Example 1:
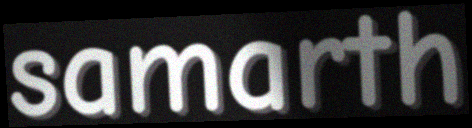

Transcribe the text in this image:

samarth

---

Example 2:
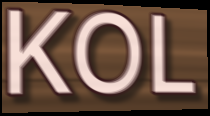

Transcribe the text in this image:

KOL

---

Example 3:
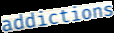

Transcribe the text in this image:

addictions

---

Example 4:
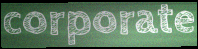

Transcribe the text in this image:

corporate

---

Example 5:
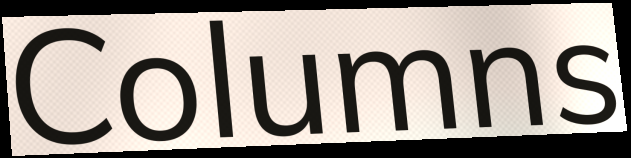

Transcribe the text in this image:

Columns